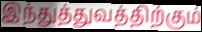
இந்துத்துவத்திற்கும்